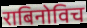
राबिनोविच